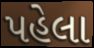
પહેલા